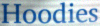
Hoodies